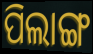
ପିଲାଙ୍ଗ